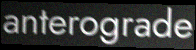
anterograde